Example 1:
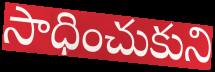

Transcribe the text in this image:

సాధించుకుని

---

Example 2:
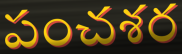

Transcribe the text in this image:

పంచశర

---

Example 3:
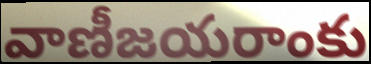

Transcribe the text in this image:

వాణీజయరాంకు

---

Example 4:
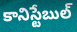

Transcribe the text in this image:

కానిస్టేబుల్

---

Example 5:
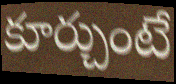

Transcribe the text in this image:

కూర్చుంటే